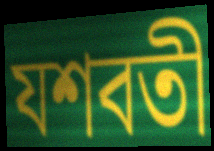
যশবতী